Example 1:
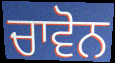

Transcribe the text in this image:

ਚਾਵੋਨ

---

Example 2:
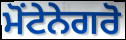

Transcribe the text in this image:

ਮੋਂਟੇਨੇਗਰੋ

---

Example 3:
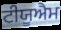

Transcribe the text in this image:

ਟੀਯੂਐਮ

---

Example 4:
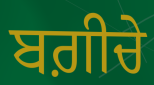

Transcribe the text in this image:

ਬਗ਼ੀਚੇ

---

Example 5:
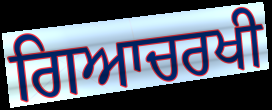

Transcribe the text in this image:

ਗਿਆਚਰਖੀ